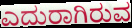
ಎದುರಾಗಿರುವ